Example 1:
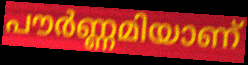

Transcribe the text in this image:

പൗർണ്ണമിയാണ്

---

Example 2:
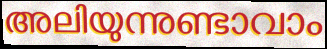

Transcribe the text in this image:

അലിയുന്നുണ്ടാവാം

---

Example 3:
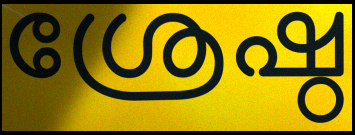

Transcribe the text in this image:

ശ്രേഷ്ഠ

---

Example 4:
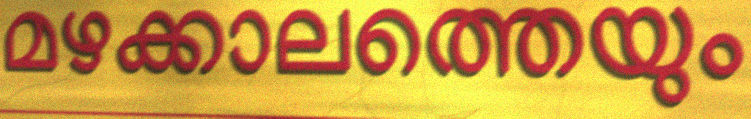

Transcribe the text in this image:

മഴക്കാലത്തെയും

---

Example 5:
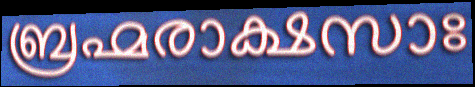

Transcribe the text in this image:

ബ്രഹ്മരാക്ഷസാഃ